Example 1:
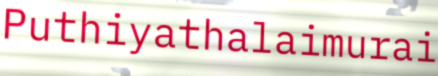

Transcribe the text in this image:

Puthiyathalaimurai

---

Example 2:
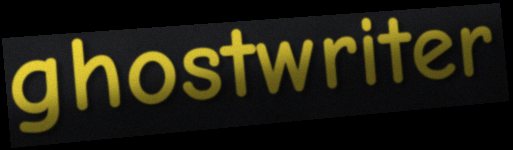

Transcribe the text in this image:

ghostwriter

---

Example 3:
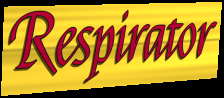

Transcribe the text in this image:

Respirator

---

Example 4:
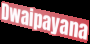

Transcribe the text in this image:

Dwaipayana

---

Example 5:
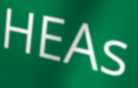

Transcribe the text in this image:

HEAs